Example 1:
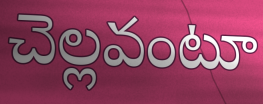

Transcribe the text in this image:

చెల్లవంటూ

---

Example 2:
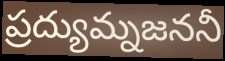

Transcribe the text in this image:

ప్రద్యుమ్నజననీ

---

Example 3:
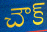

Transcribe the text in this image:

చౌక్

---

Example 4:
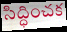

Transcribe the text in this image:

సిద్ధించక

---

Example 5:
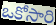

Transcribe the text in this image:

ఒకోసారి